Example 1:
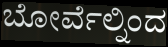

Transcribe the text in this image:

ಬೋರ್ವೆಲ್ನಿಂದ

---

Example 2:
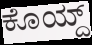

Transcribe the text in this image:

ಕೊಯ್ದ್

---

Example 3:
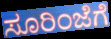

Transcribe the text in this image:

ಸೂರಿಂಜೆಗೆ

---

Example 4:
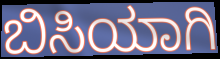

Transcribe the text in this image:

ಬಿಸಿಯಾಗಿ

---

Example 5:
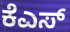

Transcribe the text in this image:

ಕೆಎಸ್